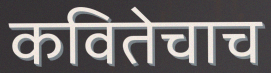
कवितेचाच